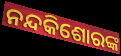
ନନ୍ଦକିଶୋରଙ୍କ